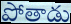
పోతాడు